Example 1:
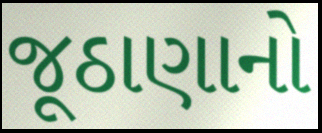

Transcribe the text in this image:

જૂઠાણાનો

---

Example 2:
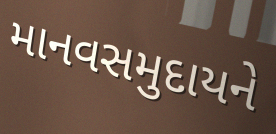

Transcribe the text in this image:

માનવસમુદાયને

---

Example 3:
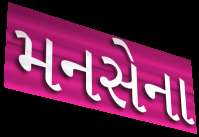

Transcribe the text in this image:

મનસેના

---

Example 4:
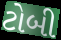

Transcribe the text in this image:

ટોબી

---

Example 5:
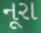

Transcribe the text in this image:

નૂરા